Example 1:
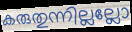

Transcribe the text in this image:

കരുതുന്നില്ലല്ലോ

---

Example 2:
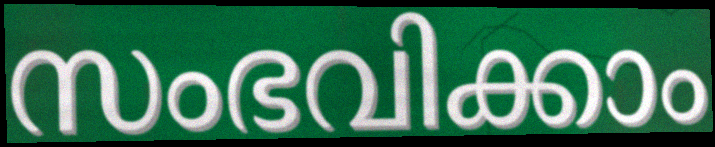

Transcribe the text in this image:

സംഭവിക്കാം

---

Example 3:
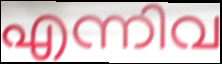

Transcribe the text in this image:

എന്നിവ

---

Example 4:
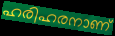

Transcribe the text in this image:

ഹരിഹരനാണ്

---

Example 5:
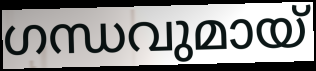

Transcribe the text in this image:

ഗന്ധവുമായ്